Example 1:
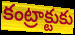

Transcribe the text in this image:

కంట్రాక్టుకు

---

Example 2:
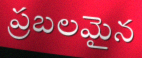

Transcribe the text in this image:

ప్రబలమైన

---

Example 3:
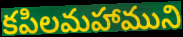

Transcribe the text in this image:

కపిలమహాముని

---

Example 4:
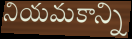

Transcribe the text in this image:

నియమకాన్ని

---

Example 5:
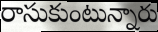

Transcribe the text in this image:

రాసుకుంటున్నారు